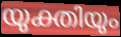
യുക്തിയും